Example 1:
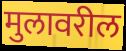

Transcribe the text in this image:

मुलावरील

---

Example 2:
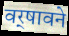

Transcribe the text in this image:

वर्षावने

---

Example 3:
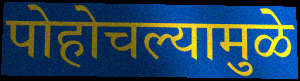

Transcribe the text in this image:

पोहोचल्यामुळे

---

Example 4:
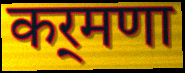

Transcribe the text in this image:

कर्मणा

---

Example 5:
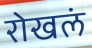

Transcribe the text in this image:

रोखलं